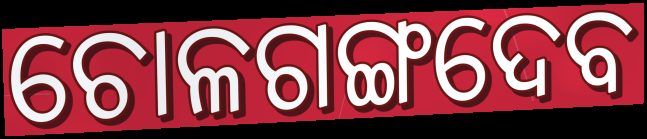
ଚୋଳଗଙ୍ଗଦେବ